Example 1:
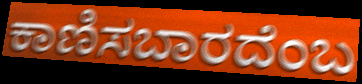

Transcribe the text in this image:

ಕಾಣಿಸಬಾರದೆಂಬ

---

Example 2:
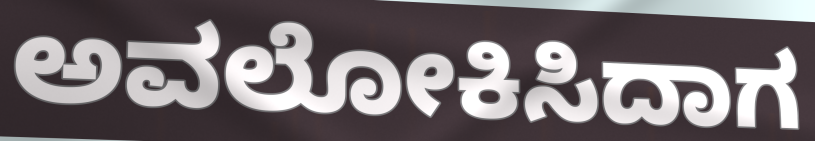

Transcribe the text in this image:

ಅವಲೋಕಿಸಿದಾಗ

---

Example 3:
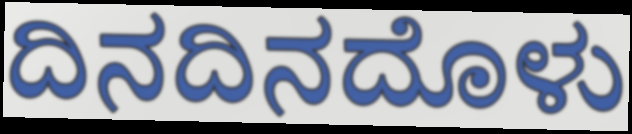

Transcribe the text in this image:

ದಿನದಿನದೊಳು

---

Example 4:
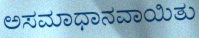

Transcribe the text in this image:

ಅಸಮಾಧಾನವಾಯಿತು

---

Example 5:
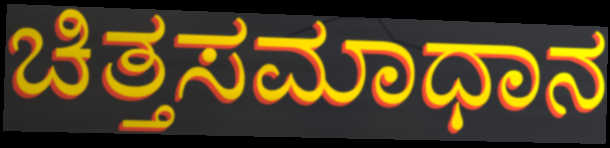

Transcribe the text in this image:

ಚಿತ್ತಸಮಾಧಾನ